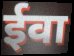
ईवा